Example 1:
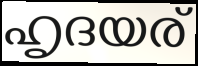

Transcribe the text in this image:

ഹൃദയര്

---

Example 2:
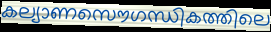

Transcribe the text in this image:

കല്യാണസൌഗന്ധികത്തിലെ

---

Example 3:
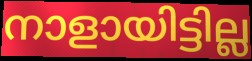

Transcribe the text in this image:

നാളായിട്ടില്ല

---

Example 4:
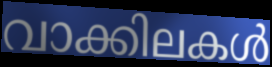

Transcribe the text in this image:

വാക്കിലകൾ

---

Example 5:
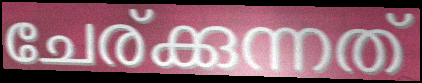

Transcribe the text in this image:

ചേര്ക്കുന്നത്